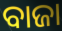
ବାଜା